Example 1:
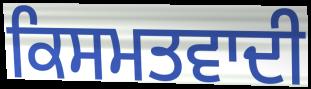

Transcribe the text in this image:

ਕਿਸਮਤਵਾਦੀ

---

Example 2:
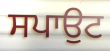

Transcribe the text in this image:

ਸਪਾਉਟ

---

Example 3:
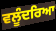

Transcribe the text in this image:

ਵਲੂੰਦਰਿਆ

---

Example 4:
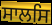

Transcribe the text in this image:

ਸਾਲਸਿ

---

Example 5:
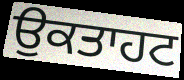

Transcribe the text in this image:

ਉਕਤਾਹਟ